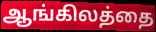
ஆங்கிலத்தை